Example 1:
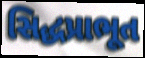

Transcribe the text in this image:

સિદ્ધપ્રાભૂત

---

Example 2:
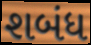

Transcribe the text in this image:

શબંધ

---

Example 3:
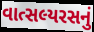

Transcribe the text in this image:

વાત્સલ્યરસનું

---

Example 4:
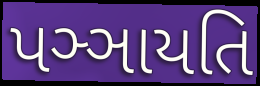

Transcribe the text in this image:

પઞ્ઞાયતિ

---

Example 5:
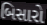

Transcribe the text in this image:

બિસારો